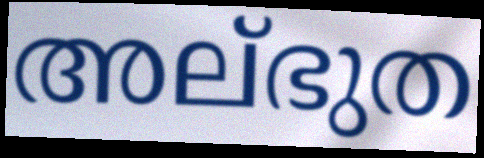
അല്ഭുത